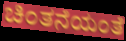
ಚಿಂತನೆಯಂತೆ